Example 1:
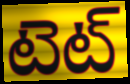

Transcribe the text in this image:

టెట్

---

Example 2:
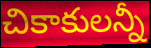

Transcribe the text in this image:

చికాకులన్నీ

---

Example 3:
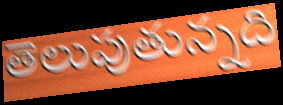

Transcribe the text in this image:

తెలుపుతున్నది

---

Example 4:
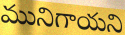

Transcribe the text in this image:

మునిగాయని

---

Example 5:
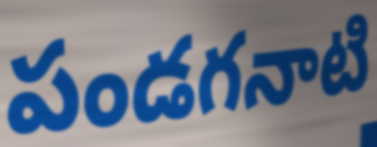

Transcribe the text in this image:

పండగనాటి